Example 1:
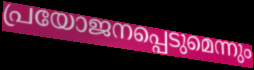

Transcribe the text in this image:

പ്രയോജനപ്പെടുമെന്നും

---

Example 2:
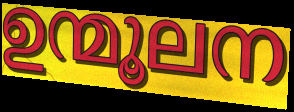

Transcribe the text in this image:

ഉന്മൂലന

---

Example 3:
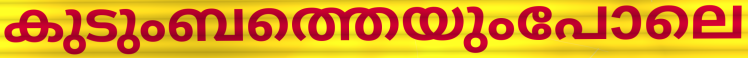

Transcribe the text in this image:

കുടുംബത്തെയുംപോലെ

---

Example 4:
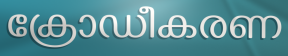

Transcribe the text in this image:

ക്രോഡീകരണ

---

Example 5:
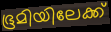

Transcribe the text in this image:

ഭൂമിയിലേക്ക്